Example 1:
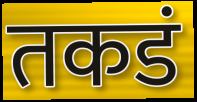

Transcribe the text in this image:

तकडं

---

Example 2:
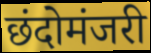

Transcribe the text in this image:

छंदोमंजरी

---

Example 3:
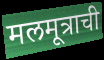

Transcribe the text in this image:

मलमूत्राची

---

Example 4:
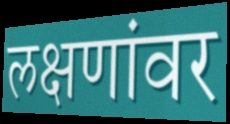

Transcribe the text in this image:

लक्षणांवर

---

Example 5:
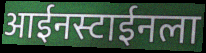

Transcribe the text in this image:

आईनस्टाईनला